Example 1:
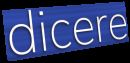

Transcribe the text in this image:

dicere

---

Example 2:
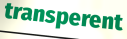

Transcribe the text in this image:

transperent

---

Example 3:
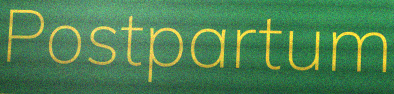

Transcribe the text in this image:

Postpartum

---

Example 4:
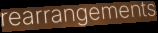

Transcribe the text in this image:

rearrangements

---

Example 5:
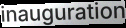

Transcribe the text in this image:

inauguration